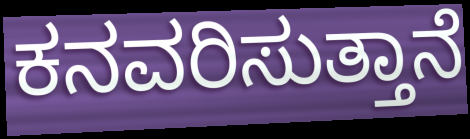
ಕನವರಿಸುತ್ತಾನೆ